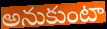
అనుకుంటా